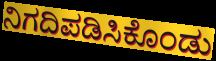
ನಿಗದಿಪಡಿಸಿಕೊಂಡು